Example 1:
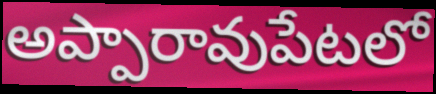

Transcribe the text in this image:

అప్పారావుపేటలో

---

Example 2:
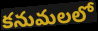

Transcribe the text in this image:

కనుమలలో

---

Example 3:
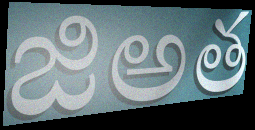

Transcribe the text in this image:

జిఅత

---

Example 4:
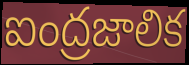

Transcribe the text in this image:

ఐంద్రజాలిక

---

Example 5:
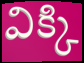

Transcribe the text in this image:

విక్కి